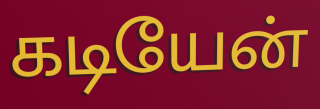
கடியேன்